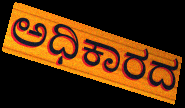
ಅಧಿಕಾರದ